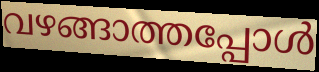
വഴങ്ങാത്തപ്പോൾ